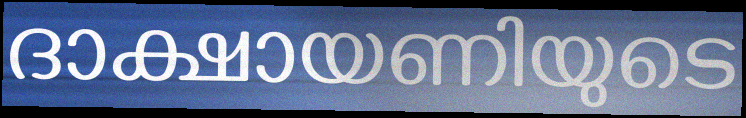
ദാക്ഷായണിയുടെ